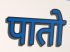
पातो